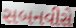
સબનવીસે